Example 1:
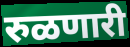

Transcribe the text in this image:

रुळणारी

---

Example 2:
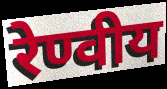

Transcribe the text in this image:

रेण्वीय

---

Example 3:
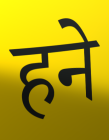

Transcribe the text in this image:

हने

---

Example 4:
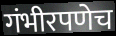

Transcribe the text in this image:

गंभीरपणेच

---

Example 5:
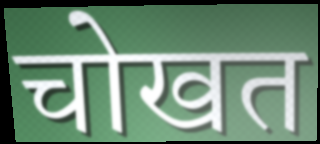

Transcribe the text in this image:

चोखत